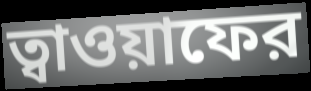
ত্বাওয়াফের